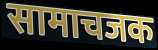
सामाचजक